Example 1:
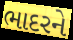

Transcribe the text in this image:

ભાદરને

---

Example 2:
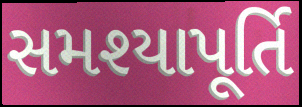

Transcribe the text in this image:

સમશ્યાપૂર્તિ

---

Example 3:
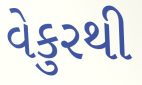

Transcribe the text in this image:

વેકુરથી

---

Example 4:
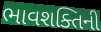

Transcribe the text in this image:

ભાવશક્તિની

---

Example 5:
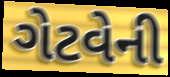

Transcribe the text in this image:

ગેટવેની